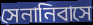
সেনানিবাসে